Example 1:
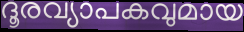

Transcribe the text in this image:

ദൂരവ്യാപകവുമായ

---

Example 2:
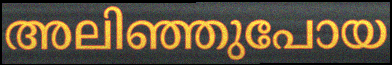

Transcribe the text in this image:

അലിഞ്ഞുപോയ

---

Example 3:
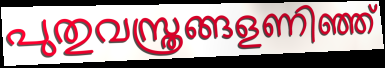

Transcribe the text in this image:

പുതുവസ്ത്രങ്ങളണിഞ്ഞ്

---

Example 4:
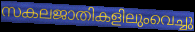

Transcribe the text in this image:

സകലജാതികളിലുംവെച്ചു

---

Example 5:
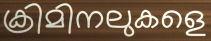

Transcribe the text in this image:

ക്രിമിനലുകളെ